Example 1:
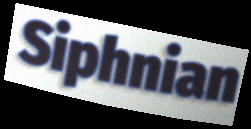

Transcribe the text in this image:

Siphnian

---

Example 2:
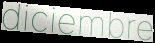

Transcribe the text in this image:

diciembre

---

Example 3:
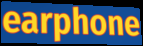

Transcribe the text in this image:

earphone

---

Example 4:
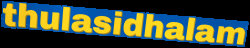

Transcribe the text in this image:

thulasidhalam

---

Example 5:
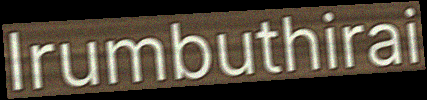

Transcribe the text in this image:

Irumbuthirai